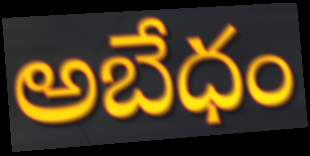
అబేధం